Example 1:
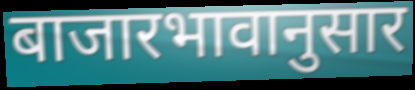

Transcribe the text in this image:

बाजारभावानुसार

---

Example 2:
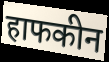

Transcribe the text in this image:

हाफकीन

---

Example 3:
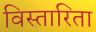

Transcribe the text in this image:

विस्तारिता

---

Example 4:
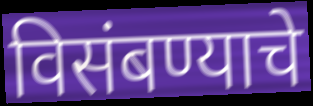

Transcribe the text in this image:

विसंबण्याचे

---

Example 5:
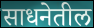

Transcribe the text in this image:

साधनेतील